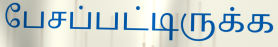
பேசப்பட்டிருக்க